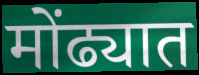
मोंढ्यात